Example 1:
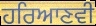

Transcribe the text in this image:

ਹਰਿਆਣਵੀ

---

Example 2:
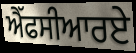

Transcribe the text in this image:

ਐੱਫਸੀਆਰਏ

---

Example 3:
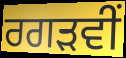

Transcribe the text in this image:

ਰਗੜਵੀਂ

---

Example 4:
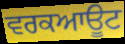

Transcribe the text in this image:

ਵਰਕਆਊਟ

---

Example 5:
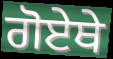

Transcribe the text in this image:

ਗੋਏਥੇ